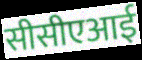
सीसीएआई